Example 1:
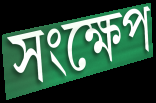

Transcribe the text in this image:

সংক্ষেপ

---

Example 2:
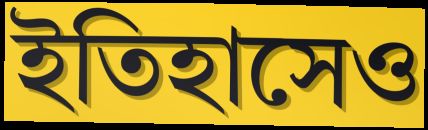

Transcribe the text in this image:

ইতিহাসেও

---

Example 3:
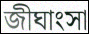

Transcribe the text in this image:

জীঘাংসা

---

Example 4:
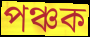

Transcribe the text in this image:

পঞ্চক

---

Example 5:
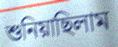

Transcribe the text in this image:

শুনিয়াছিলাম